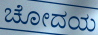
ಚೋದಯ